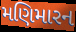
મણિમારન